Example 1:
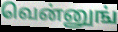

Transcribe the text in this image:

வென்னுங்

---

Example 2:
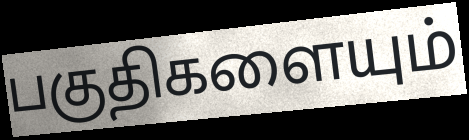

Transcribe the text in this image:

பகுதிகளையும்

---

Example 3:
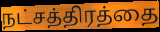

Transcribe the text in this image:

நட்சத்திரத்தை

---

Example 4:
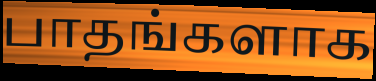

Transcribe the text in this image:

பாதங்களாக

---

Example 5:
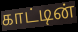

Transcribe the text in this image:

காட்டின்